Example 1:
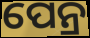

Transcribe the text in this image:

ପେନ୍ର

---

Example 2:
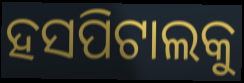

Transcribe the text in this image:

ହସପିଟାଲକୁ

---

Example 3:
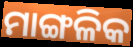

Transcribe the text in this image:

ମାଙ୍ଗଳିକ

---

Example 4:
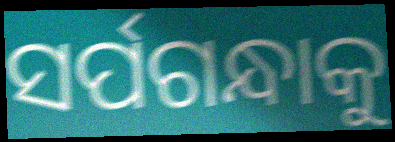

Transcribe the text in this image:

ସର୍ପଗନ୍ଧାକୁ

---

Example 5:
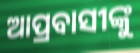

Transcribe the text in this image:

ଆପ୍ରବାସୀଙ୍କୁ